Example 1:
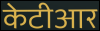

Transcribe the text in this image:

केटीआर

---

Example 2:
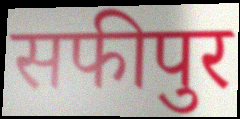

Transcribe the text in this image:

सफीपुर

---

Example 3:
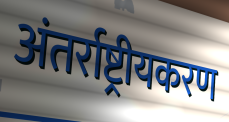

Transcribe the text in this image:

अंतर्राष्ट्रीयकरण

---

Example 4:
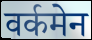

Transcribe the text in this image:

वर्कमेन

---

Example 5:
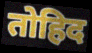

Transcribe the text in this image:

तोहिद